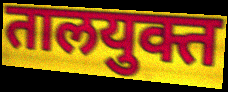
तालयुक्त